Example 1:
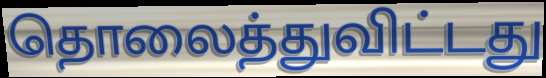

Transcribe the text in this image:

தொலைத்துவிட்டது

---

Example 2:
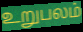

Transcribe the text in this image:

உறுபலம்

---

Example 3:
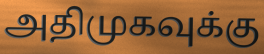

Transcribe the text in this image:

அதிமுகவுக்கு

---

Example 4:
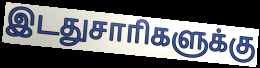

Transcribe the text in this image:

இடதுசாரிகளுக்கு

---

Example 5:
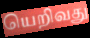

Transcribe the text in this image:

யெறிவது